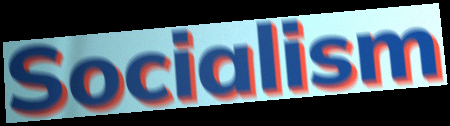
Socialism